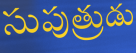
సుపుత్రుడు